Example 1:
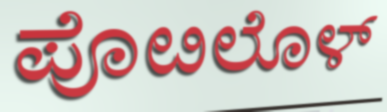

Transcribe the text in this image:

ಪೊೞಲೊಳ್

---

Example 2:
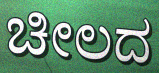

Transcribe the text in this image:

ಚೀಲದ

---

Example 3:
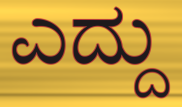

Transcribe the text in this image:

ಎದ್ದು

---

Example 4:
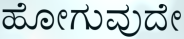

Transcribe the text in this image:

ಹೋಗುವುದೇ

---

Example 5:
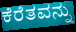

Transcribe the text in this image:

ಕೆರೆತವನ್ನು